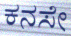
ಕನಸೇ